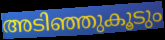
അടിഞ്ഞുകൂടും